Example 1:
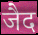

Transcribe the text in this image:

जैद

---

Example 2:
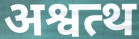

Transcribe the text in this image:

अश्वत्थ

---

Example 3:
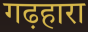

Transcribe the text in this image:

गढ़हारा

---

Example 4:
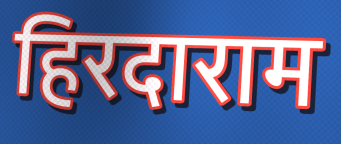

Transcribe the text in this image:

हिरदाराम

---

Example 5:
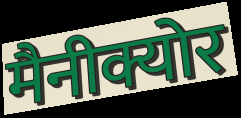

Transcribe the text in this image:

मैनीक्योर